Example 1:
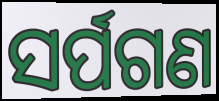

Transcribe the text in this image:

ସର୍ପଗଣ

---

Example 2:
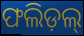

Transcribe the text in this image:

ଫଲିଡ଼ଲ୍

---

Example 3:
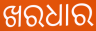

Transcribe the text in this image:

ଖରଧାର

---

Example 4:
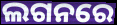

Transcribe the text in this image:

ଲଗନରେ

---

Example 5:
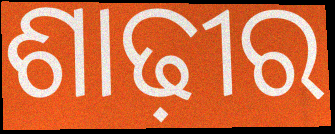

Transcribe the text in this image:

ଶାଢ଼ୀର